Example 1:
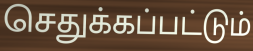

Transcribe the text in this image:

செதுக்கப்பட்டும்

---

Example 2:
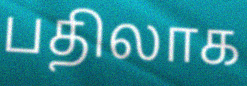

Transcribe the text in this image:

பதிலாக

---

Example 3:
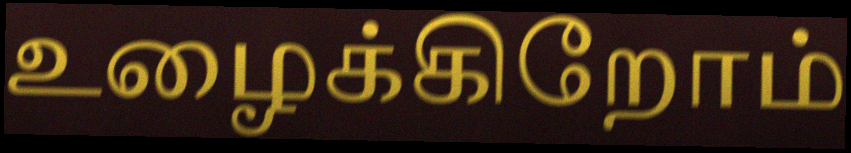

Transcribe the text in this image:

உழைக்கிறோம்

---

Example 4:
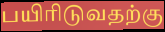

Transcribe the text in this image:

பயிரிடுவதற்கு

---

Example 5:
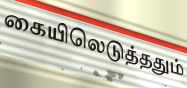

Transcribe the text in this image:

கையிலெடுத்ததும்